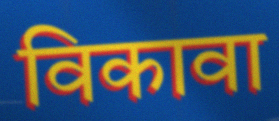
विकावा